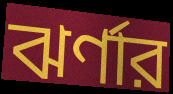
ঝর্ণার